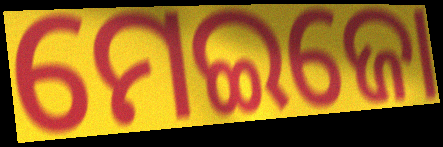
ମେଇଜୋ